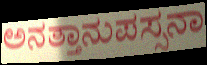
ಅನತ್ತಾನುಪಸ್ಸನಾ